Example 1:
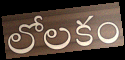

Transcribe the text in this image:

లోలకం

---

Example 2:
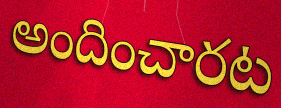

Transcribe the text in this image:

అందించారట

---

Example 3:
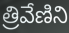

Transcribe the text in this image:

త్రివేణిని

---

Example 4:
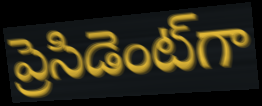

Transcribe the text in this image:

ప్రెసిడెంట్‌గా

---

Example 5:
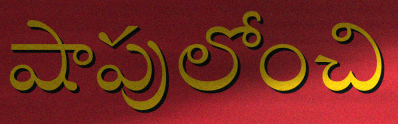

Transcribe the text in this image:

షాపులోంచి